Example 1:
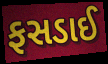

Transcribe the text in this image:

ફસડાઈ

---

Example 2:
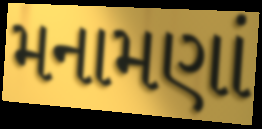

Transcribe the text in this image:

મનામણાં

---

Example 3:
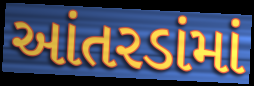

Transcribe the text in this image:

આંતરડાંમાં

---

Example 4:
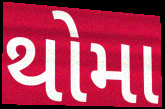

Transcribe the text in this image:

થોમા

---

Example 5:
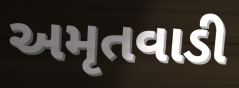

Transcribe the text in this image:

અમૃતવાડી